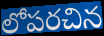
లోపరచిన